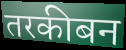
तरकीबन